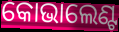
କୋଭାଲେଣ୍ଟ